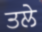
ਤਲੇ